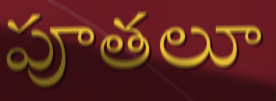
పూతలూ